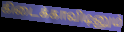
கிடைக்காவிடினும்